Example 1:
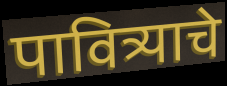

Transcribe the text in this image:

पावित्र्याचे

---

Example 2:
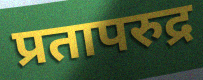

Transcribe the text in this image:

प्रतापरुद्र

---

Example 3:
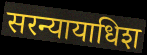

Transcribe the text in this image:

सरन्यायाधिश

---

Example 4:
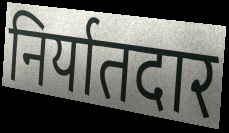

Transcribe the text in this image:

निर्यातदार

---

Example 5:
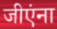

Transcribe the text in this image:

जीएंना